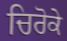
ਚਿਰੋਕੇ